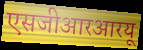
एसजीआरआरयू